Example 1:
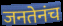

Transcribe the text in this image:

जनतेनंच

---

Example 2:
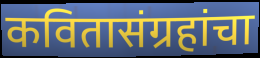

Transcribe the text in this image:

कवितासंग्रहांचा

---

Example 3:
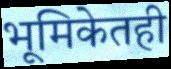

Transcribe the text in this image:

भूमिकेतही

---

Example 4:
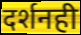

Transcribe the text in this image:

दर्शनही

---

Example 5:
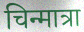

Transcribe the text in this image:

चिन्मात्रा